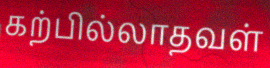
கற்பில்லாதவள்